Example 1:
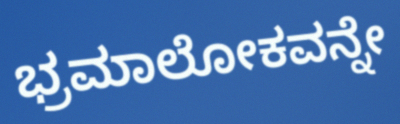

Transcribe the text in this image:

ಭ್ರಮಾಲೋಕವನ್ನೇ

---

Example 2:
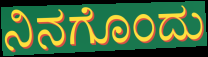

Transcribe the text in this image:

ನಿನಗೊಂದು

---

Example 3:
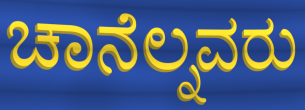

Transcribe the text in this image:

ಚಾನೆಲ್ನವರು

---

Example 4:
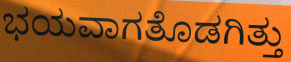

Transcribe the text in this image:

ಭಯವಾಗತೊಡಗಿತ್ತು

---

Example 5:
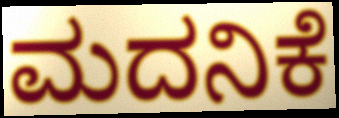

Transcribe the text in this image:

ಮದನಿಕೆ